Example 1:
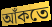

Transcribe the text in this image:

আঁকতে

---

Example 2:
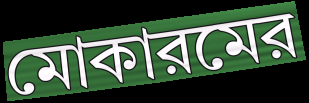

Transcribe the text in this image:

মোকারমের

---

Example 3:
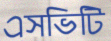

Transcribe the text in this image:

এসভিটি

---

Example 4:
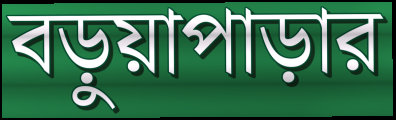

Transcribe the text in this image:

বড়ুয়াপাড়ার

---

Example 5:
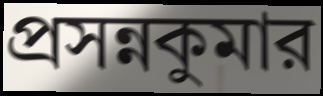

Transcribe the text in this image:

প্রসন্নকুমার